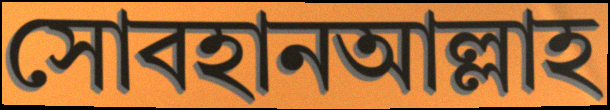
সোবহানআল্লাহ